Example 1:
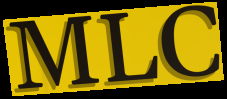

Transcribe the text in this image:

MLC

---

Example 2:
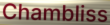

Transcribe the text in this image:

Chambliss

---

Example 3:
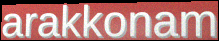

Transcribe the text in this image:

arakkonam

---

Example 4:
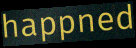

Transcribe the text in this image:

happned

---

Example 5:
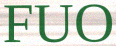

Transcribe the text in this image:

FUO